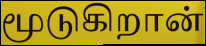
மூடுகிறான்